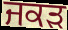
ਜਕੜ